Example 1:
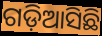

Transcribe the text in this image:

ଗଡ଼ିଆସିଛି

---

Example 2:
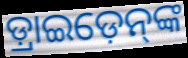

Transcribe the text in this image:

ଡ଼୍ରାଇଡ଼େନ୍‌ଙ୍କ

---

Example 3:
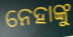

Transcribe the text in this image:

ନେହାଙ୍କୁ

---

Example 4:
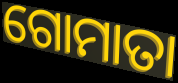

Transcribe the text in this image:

ଗୋମାତା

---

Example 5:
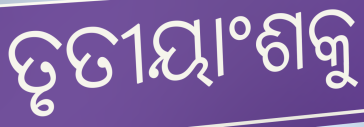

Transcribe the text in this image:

ତୃତୀୟାଂଶକୁ